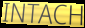
INTACH